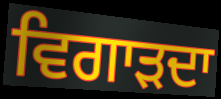
ਵਿਗਾੜਦਾ